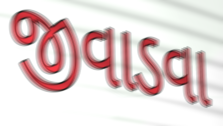
જીવાડવા